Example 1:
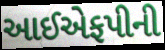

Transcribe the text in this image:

આઈએફપીની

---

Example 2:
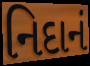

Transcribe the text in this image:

નિદાનં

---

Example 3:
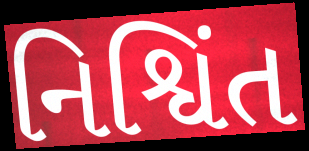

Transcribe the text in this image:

નિશ્વિંત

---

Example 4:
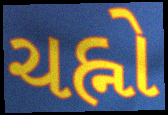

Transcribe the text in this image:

ચહ્નો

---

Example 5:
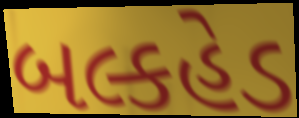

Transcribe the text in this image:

બલ્કહેડ